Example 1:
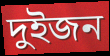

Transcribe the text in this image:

দুইজন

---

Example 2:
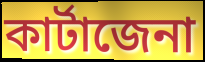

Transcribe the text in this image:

কাৰ্টাজেনা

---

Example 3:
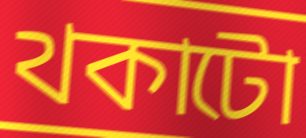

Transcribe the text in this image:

থকাটো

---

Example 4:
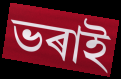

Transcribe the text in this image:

ভৰাই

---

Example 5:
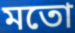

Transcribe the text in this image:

মতো